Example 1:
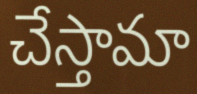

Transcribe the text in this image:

చేస్తామా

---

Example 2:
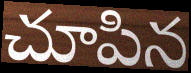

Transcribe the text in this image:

చూపిన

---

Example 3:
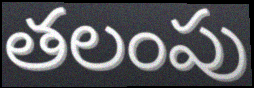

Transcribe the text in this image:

తలంపు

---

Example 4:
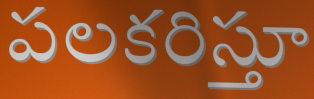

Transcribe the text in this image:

పలకరిస్తూ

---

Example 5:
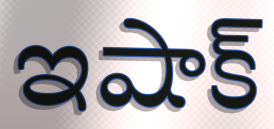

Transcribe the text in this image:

ఇషాక్